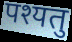
पश्यतु